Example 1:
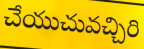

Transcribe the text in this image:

చేయుచువచ్చిరి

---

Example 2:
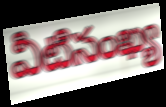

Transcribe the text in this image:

వీటిసంఖ్య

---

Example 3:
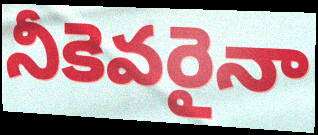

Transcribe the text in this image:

నీకెవరైనా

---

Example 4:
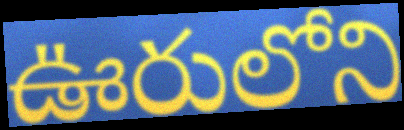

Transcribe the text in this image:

ఊరులోని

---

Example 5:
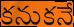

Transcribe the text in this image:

కనుకనే